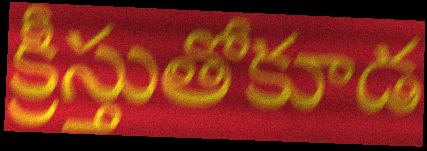
క్రీస్తుతోకూడ